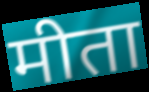
मीता